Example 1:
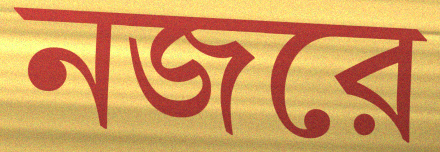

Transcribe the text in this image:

নজরে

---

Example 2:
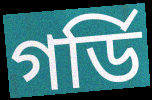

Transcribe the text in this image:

গর্ডি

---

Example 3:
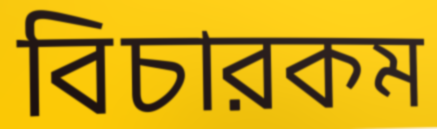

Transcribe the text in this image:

বিচারকম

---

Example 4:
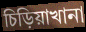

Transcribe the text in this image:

চিড়িয়াখানা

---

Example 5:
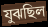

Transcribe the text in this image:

যুঝছিল